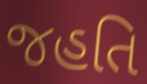
જહતિ